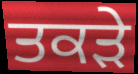
ਤਕੜੇ